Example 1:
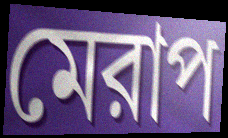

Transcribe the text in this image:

মেরাপ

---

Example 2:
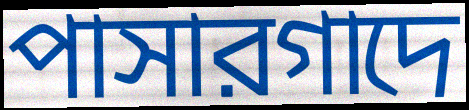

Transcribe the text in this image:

পাসারগাদে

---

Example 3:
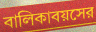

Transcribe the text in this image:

বালিকাবয়সের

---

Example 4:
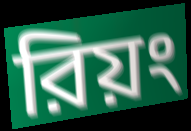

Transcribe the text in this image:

রিয়ং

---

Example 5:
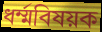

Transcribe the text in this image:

ধর্ম্মবিষয়ক